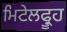
ਮਿਟੇਲਫ੍ਰੂਹ